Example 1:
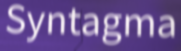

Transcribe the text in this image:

Syntagma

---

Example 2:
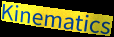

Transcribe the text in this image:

Kinematics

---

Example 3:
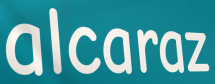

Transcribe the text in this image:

alcaraz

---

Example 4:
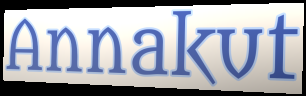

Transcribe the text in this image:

Annakut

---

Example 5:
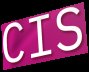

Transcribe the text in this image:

CIS